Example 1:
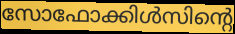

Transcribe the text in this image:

സോഫോക്കിൾസിന്റെ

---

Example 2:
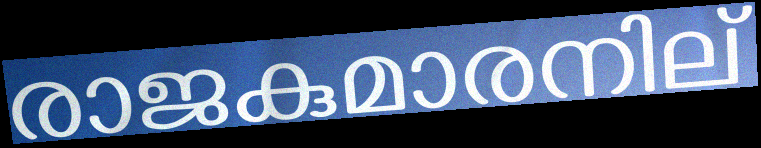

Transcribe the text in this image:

രാജകുമാരനില്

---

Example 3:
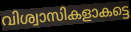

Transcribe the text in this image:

വിശ്വാസികളാകട്ടെ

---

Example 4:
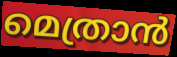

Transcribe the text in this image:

മെത്രാൻ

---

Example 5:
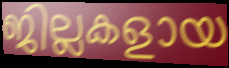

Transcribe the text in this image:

ജില്ലകളായ